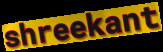
shreekant